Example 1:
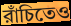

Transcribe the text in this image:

রাঁচিতেও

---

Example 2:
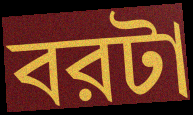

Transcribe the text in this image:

বরটা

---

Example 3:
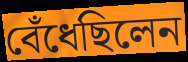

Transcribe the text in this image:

বেঁধেছিলেন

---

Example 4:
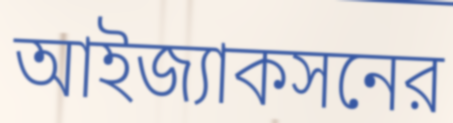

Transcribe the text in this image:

আইজ্যাকসনের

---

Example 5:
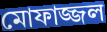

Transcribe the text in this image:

মোফাজ্জল